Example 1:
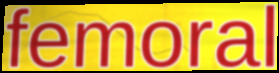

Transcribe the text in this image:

femoral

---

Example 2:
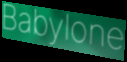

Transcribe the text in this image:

Babylone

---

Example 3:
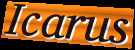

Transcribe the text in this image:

Icarus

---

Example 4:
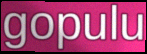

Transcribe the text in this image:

gopulu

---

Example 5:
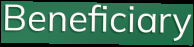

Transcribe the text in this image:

Beneficiary